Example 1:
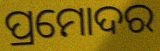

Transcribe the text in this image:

ପ୍ରମୋଦର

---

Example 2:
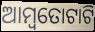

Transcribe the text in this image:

ଆମ୍ବତୋଟାଟି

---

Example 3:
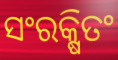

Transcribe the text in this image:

ସଂରକ୍ଷିତଂ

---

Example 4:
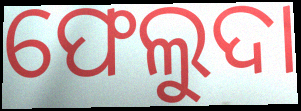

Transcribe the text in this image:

ଫେଲୁଦା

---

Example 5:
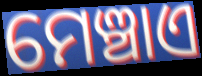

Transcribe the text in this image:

ମେଞ୍ଚାଏ